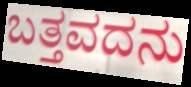
ಬತ್ತವದನು